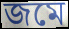
জমে